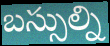
బస్సుల్ని